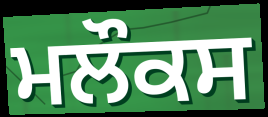
ਮਲੌਕਸ